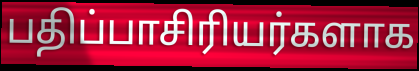
பதிப்பாசிரியர்களாக